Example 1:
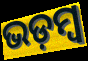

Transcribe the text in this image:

ଭଡ଼ମ୍ବ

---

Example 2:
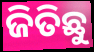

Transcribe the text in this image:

ଜିତିଛୁ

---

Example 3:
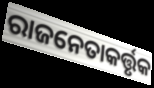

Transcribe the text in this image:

ରାଜନେତାକର୍ତ୍ତୃକ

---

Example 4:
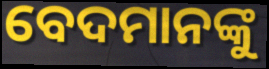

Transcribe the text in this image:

ବେଦମାନଙ୍କୁ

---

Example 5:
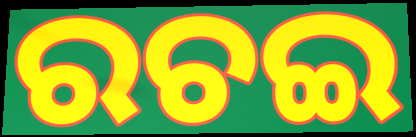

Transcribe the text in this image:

ରଚଇ